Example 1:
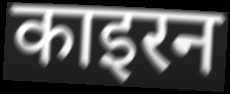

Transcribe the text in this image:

काइरन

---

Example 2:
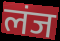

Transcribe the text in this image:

लंज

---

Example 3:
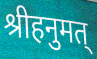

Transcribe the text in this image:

श्रीहनुमत्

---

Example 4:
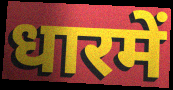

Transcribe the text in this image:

धारमें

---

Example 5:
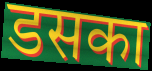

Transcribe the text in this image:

डसका